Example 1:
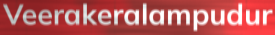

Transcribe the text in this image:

Veerakeralampudur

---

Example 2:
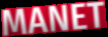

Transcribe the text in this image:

MANET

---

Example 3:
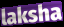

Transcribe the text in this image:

laksha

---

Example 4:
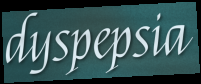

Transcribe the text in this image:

dyspepsia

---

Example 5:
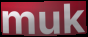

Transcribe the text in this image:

muk